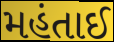
મહંતાઈ